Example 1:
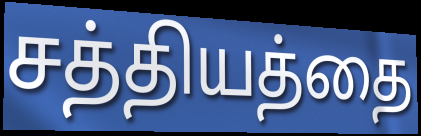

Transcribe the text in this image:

சத்தியத்தை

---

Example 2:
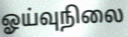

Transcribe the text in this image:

ஓய்வுநிலை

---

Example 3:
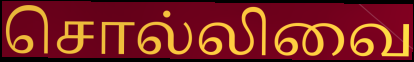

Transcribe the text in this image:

சொல்லிவை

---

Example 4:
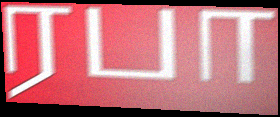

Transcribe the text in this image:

ரபா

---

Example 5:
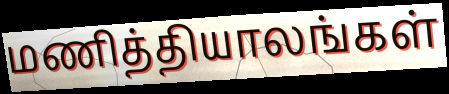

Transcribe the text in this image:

மணித்தியாலங்கள்